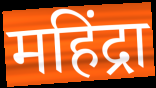
महिंद्रा